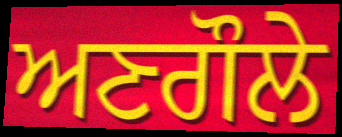
ਅਣਗੌਲੇ